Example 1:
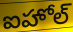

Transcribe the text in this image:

ఐహోల్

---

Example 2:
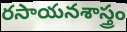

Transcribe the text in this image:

రసాయనశాస్త్రం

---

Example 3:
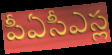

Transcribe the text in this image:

పీఏసీఎస్ల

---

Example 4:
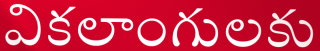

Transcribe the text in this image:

వికలాంగులకు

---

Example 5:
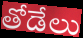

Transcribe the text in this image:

తోడేలు